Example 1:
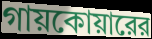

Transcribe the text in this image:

গায়কোয়ারের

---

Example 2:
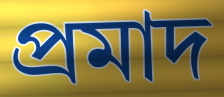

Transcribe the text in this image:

প্রমাদ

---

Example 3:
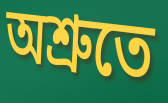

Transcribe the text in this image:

অশ্রুতে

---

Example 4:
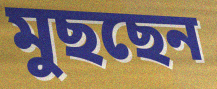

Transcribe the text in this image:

মুছছেন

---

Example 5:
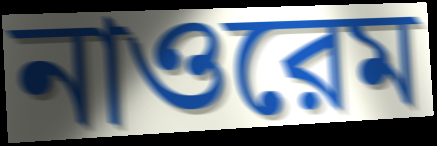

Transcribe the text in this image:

নাওরেম